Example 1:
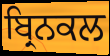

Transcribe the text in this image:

ਬ੍ਰਿਨਕਲ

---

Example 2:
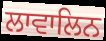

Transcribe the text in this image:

ਲਾਵਾਲਿਨ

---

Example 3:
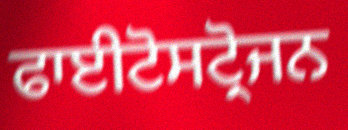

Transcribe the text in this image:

ਫਾਈਟੋਸਟ੍ਰੋਜਨ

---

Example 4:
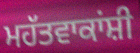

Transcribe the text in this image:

ਮਹੱਤਵਾਕਾਂਸ਼ੀ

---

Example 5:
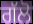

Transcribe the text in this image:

ਗੱਲੋ